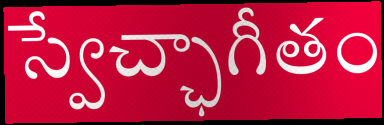
స్వేచ్ఛాగీతం